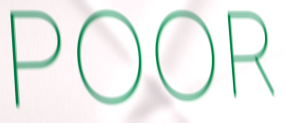
POOR